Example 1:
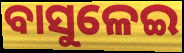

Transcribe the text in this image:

ବାସୁଳେଇ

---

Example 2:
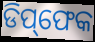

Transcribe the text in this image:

ଡିପ୍‌ଫେକ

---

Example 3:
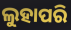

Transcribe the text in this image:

ଲୁହାପରି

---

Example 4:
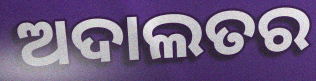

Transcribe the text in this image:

ଅଦାଲତର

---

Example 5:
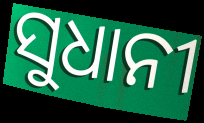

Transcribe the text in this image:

ସୁଧାନୀ